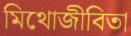
মিথোজীবিতা